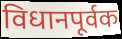
विधानपूर्वक